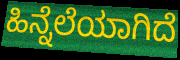
ಹಿನ್ನೆಲೆಯಾಗಿದೆ